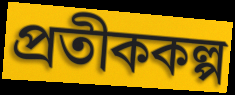
প্রতীককল্প